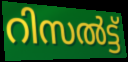
റിസൽട്ട്